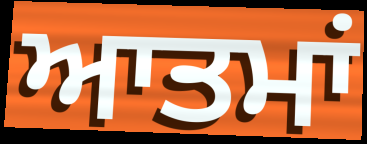
ਆਤਮਾਂ